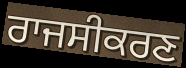
ਰਾਜਸੀਕਰਣ